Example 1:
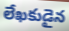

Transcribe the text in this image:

లేఖకుడైన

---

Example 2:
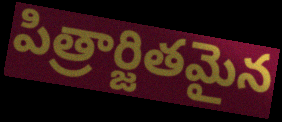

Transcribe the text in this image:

పిత్రార్జితమైన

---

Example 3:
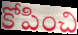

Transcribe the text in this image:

కోపించి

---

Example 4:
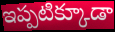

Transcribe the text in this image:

ఇప్పటిక్కూడా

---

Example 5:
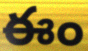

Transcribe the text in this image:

ఈం